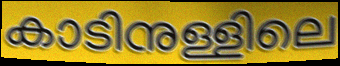
കാടിനുള്ളിലെ